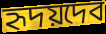
হৃদয়দেব